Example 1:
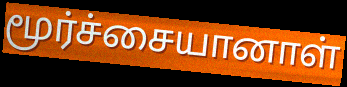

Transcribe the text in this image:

மூர்ச்சையானாள்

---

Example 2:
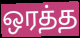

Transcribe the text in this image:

ஒரத்த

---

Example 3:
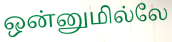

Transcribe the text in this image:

ஒன்னுமில்லே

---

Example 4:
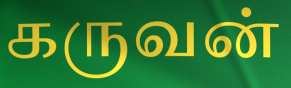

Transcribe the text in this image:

கருவன்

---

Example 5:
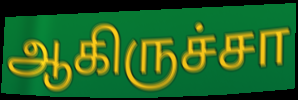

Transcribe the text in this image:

ஆகிருச்சா